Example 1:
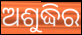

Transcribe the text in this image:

ଅଶୁଦ୍ଧିର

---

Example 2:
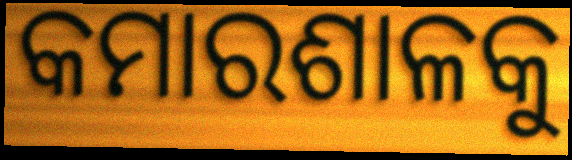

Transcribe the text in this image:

କମାରଶାଳକୁ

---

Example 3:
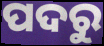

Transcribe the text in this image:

ପଦରୁ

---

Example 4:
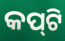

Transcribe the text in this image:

କପ୍‌ଟି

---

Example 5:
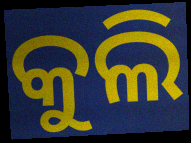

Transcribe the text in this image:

କୁଲି